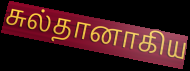
சுல்தானாகிய